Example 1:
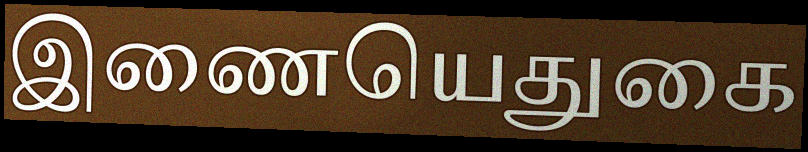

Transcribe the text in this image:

இணையெதுகை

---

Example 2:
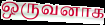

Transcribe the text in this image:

ஒருவனாக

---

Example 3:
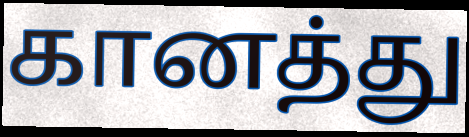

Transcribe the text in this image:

கானத்து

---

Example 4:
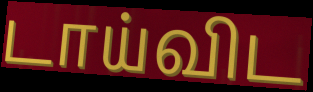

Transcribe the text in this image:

டாய்விட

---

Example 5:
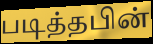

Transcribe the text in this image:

படித்தபின்